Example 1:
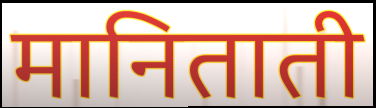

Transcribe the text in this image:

मानिताती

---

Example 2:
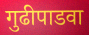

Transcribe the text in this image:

गुढीपाडवा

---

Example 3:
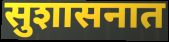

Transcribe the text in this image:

सुशासनात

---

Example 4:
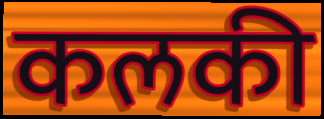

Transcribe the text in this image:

कलकी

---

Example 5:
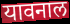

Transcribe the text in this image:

यावनाल